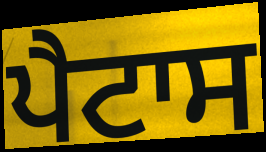
ਪੈਟਾਸ